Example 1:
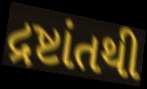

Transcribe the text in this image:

દ્રષ્ટાંતથી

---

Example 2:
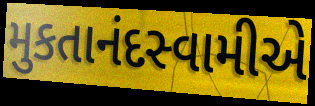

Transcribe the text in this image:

મુકતાનંદસ્વામીએ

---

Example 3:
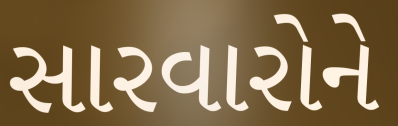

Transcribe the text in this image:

સારવારોને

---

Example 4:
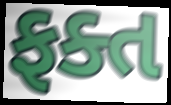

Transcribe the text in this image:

ફક્ત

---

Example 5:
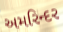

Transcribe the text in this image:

અમરિન્દર